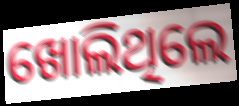
ଖୋଲିଥିଲେ